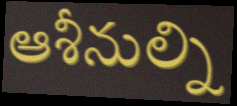
ఆశీనుల్ని